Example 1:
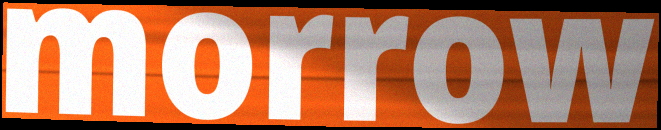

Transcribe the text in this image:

morrow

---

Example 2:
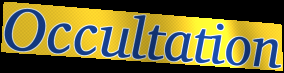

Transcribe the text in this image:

Occultation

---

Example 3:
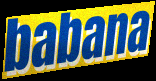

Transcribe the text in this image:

babana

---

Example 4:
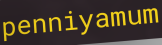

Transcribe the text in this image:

penniyamum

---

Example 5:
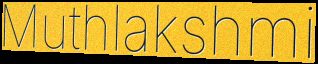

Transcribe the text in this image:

Muthlakshmi